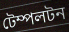
টেম্পলটন